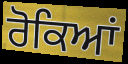
ਰੋਕਿਆਂ